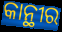
କାନ୍ଥୀର